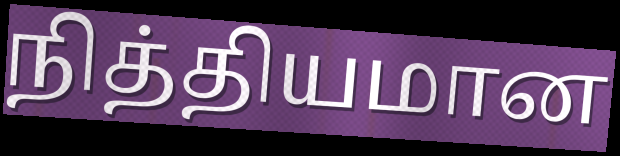
நித்தியமான